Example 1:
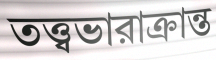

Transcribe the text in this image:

তত্ত্বভারাক্রান্ত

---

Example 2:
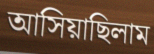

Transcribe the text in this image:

আসিয়াছিলাম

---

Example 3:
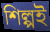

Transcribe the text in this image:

শিল্পই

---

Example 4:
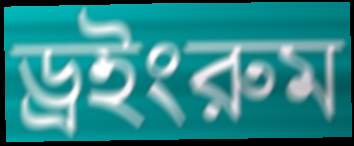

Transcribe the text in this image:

ড্রইংরুম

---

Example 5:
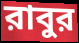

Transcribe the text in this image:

রাবুর